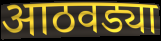
आठवड्या